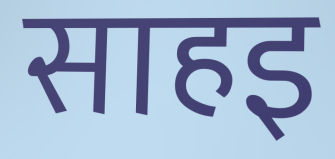
साहइ